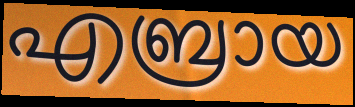
എബ്രായ